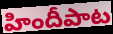
హిందీపాట